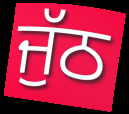
ਜੁੱਠ